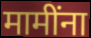
मामींना